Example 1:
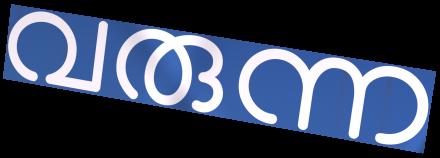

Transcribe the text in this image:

വരുന്ന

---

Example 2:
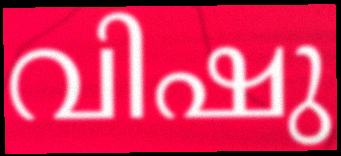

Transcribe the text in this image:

വിഷു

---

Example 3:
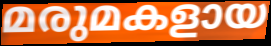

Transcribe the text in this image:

മരുമകളായ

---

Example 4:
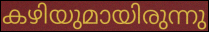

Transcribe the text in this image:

കഴിയുമായിരുന്നു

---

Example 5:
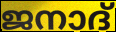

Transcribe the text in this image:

ജനാദ്